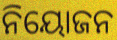
ନିୟୋଜନ